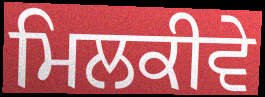
ਮਿਲਕੀਵੇ